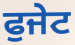
ਫੁਜੇਟ